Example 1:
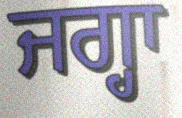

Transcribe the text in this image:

ਜਗ੍ਹਾ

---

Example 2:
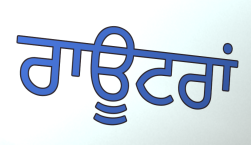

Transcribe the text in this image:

ਰਾਊਟਰਾਂ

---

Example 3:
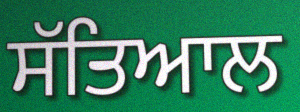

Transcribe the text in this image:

ਸੱਤਿਆਲ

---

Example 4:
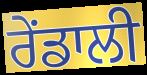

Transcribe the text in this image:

ਰੇਂਡਾਲੀ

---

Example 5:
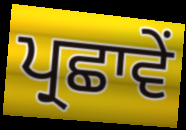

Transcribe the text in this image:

ਪ੍ਰਛਾਵੇਂ